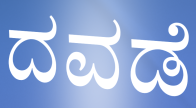
ದವಡೆ